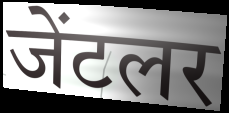
जेंटलर